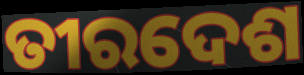
ତୀରଦେଶ